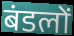
बंडलों